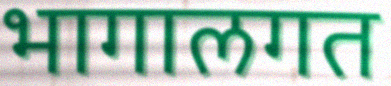
भागालगत